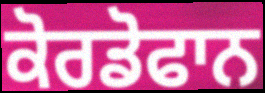
ਕੋਰਡੋਫਾਨ